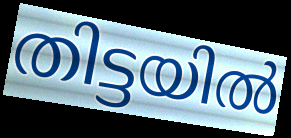
തിട്ടയിൽ